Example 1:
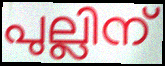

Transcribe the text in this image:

പുല്ലിന്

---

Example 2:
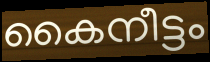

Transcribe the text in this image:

കൈനീട്ടം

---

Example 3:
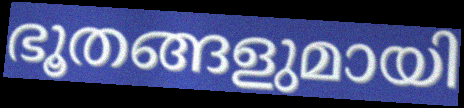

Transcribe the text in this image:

ഭൂതങ്ങളുമായി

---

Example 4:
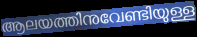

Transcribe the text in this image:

ആലയത്തിനുവേണ്ടിയുള്ള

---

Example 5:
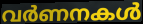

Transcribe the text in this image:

വർണനകൾ